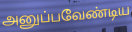
அனுப்பவேண்டிய